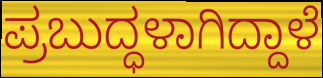
ಪ್ರಬುದ್ಧಳಾಗಿದ್ದಾಳೆ